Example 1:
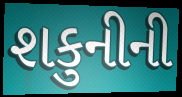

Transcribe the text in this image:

શકુનીની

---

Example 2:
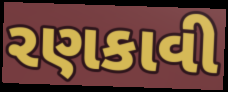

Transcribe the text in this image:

રણકાવી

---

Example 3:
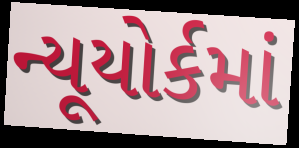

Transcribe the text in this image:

ન્યૂયોર્કમાં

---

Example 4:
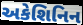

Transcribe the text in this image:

અકેશિનિન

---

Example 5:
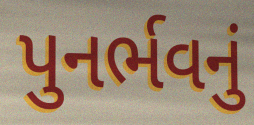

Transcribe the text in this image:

પુનર્ભવનું